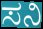
ಸನಿ